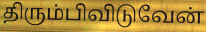
திரும்பிவிடுவேன்